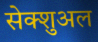
सेक्शुअल